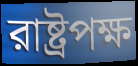
রাষ্ট্রপক্ষ